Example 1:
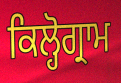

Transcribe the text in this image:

ਕਿਲ੍ਹੋਗ੍ਰਾਮ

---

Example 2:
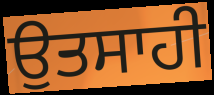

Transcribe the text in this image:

ਉਤਸਾਹੀ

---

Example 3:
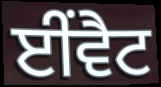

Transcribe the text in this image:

ਈਂਵੈਟ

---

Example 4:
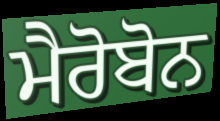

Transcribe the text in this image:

ਮੈਰੋਬੋਨ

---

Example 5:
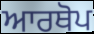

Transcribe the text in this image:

ਆਰਥੋਪ